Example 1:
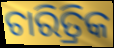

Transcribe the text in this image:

ଚାରିତ୍ରିକ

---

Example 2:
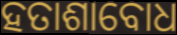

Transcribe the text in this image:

ହତାଶାବୋଧ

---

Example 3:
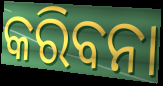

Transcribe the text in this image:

କରିବନା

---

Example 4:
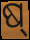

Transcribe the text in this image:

ଷ୍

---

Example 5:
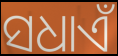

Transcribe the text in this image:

ସଧାଏଁ